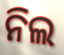
ନିଲ